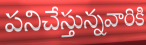
పనిచేస్తున్నవారికి